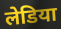
लेडिया